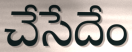
చేసేదేం